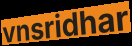
vnsridhar